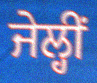
ਜੇਲ੍ਹੀਂ